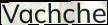
Vachche